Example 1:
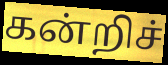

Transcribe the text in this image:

கன்றிச்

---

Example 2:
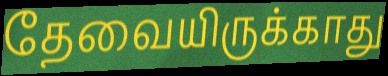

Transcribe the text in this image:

தேவையிருக்காது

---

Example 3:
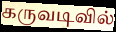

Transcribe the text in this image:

கருவடிவில்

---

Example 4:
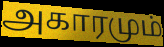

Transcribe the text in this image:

அகாரமும்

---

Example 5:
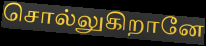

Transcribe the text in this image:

சொல்லுகிறானே